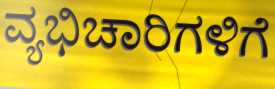
ವ್ಯಭಿಚಾರಿಗಳಿಗೆ